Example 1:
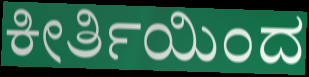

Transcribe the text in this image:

ಕೀರ್ತಿಯಿಂದ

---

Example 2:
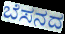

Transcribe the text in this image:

ಬೆಸನದ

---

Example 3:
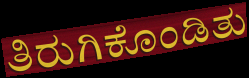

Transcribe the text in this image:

ತಿರುಗಿಕೊಂಡಿತು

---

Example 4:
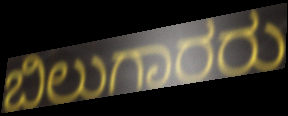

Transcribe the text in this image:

ಬಿಲುಗಾರರು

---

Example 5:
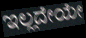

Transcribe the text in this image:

ಇಲ್ಲದೇಯೇ